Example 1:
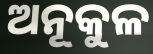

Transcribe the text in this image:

ଅନୂକୁଳ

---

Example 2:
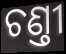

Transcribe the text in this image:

ଚଣ୍ତୀ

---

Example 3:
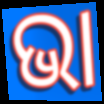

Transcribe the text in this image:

ଭା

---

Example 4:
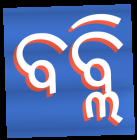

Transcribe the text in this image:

ବବ୍ଲି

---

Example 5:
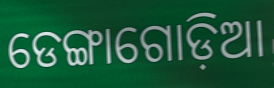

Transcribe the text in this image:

ଡେଙ୍ଗାଗୋଡ଼ିଆ